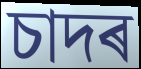
চাদৰ